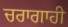
ਚਰਾਗਾਹੀ